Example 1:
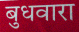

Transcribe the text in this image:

बुधवारा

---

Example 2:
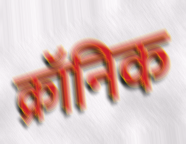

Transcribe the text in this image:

क्रॉनिक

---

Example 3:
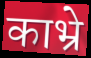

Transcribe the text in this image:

काभ्रे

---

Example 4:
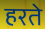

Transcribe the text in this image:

हरते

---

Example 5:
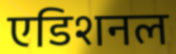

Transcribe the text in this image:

एडिशनल